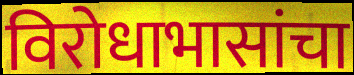
विरोधाभासांचा